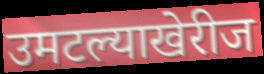
उमटल्याखेरीज